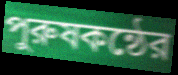
পুরুষকন্ঠের